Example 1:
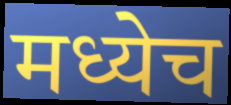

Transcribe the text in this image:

मध्‍येच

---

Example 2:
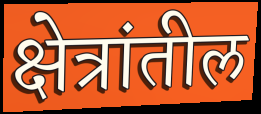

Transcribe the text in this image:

क्षेत्रांतील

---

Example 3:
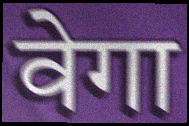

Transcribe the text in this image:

वेगा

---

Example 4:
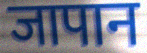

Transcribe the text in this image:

जापान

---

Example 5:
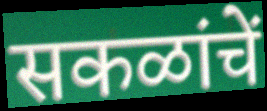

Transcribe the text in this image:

सकळांचें